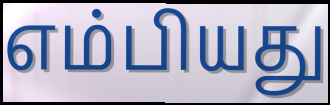
எம்பியது